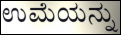
ಉಮೆಯನ್ನು